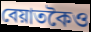
বেয়াতকৈও